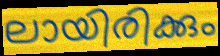
ലായിരിക്കും